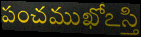
పంచముఖోఽస్తి